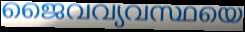
ജൈവവ്യവസ്ഥയെ